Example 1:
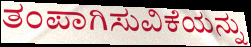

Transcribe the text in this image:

ತಂಪಾಗಿಸುವಿಕೆಯನ್ನು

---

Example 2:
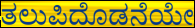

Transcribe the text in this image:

ತಲುಪಿದೊಡನೆಯೇ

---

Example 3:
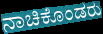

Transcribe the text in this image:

ನಾಚಿಕೊಂಡರು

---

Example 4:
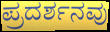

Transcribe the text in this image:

ಪ್ರದರ್ಶನವು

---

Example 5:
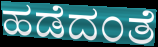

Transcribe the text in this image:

ಹಡೆದಂತೆ